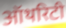
ऑथरिटी